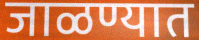
जाळण्यात